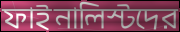
ফাইনালিস্টদের